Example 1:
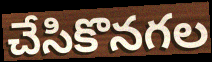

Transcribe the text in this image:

చేసికొనగల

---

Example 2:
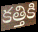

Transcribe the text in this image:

కత్తికి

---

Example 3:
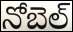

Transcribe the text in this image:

నోబెల్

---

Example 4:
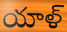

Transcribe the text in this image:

యాళ్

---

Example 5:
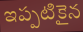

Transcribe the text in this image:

ఇప్పటికైన